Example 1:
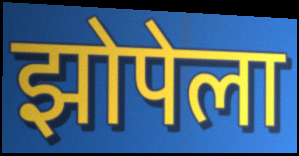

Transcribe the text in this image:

झोपेला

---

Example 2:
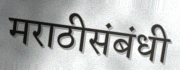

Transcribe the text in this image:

मराठीसंबंधी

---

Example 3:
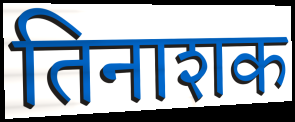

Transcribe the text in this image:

तिनाशक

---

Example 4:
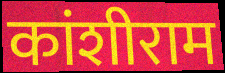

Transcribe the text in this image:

कांशीराम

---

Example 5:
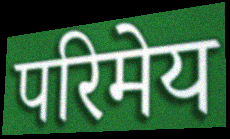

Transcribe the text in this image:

परिमेय